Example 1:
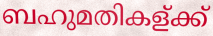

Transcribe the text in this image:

ബഹുമതികള്ക്ക്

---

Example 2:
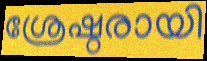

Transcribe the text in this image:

ശ്രേഷ്ഠരായി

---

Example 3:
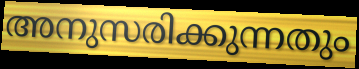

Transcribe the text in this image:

അനുസരിക്കുന്നതും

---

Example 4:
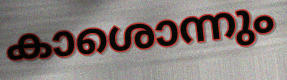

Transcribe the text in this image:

കാശൊന്നും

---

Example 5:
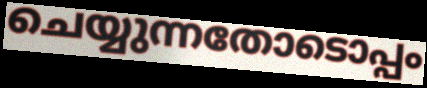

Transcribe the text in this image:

ചെയ്യുന്നതോടൊപ്പം